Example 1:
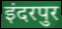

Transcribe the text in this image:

इंदरपुर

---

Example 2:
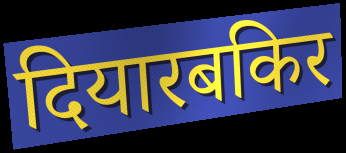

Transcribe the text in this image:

दियारबकिर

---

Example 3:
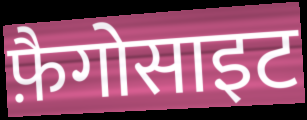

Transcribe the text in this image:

फ़ैगोसाइट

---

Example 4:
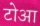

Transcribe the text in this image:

टोआ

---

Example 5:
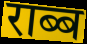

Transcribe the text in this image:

राब्ब